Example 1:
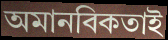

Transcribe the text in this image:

অমানবিকতাই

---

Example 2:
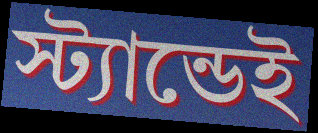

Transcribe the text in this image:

স্ট্যান্ডেই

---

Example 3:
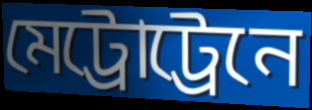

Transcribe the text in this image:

মেট্রোট্রেনে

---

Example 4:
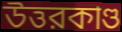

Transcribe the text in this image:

উত্তরকাণ্ড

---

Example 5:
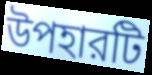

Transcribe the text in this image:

উপহারটি